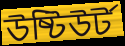
উষ্টিউৰ্ট